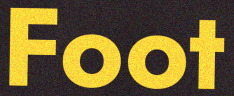
Foot